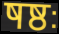
षष्ठः